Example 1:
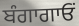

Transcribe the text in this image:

ਬੰਗਾਗਾਓਂ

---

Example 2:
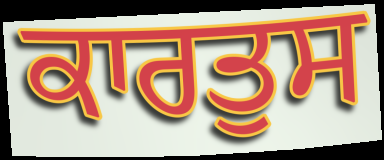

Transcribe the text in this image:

ਕਾਰਤੁਸ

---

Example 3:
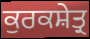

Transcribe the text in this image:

ਕੁਰਕਸ਼ੇਤ੍ਰ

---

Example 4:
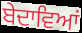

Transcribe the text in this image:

ਬੇਦਾਵਿਆਂ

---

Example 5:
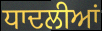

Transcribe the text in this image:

ਧਾਦਲੀਆਂ